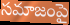
సమాజంపై